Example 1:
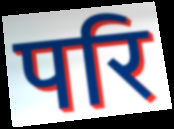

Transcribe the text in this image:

परि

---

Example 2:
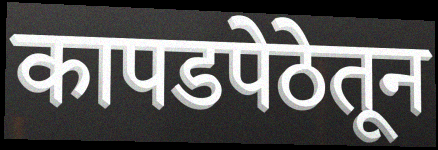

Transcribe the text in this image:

कापडपेठेतून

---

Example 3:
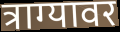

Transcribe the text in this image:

त्राग्यावर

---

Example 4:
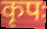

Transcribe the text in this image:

कृपः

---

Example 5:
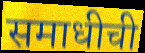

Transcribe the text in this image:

समाधीची